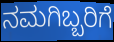
ನಮಗಿಬ್ಬರಿಗೆ